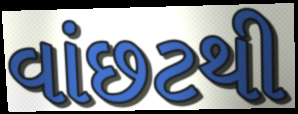
વાંછટથી